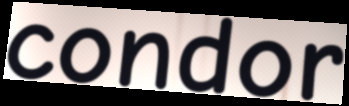
condor